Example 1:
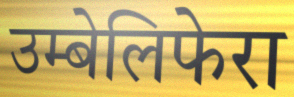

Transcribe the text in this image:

उम्बेलिफेरा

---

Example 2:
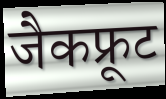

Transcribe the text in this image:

जैकफ्रूट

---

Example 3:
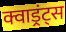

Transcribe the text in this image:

क्वाड्रंट्स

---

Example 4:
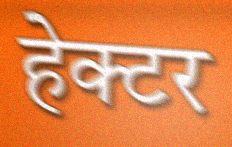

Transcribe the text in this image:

हेक्‍टर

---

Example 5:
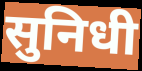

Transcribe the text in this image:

सुनिधी